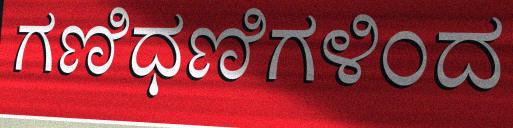
ಗಣಿಧಣಿಗಳಿಂದ